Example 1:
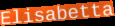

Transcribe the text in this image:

Elisabetta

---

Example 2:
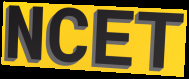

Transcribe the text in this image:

NCET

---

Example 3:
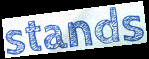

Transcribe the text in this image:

stands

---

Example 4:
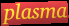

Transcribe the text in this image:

plasma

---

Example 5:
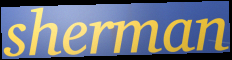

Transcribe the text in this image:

sherman